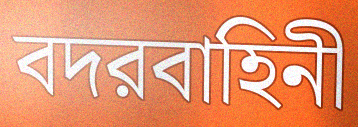
বদরবাহিনী